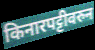
किनारपट्टीवरुन